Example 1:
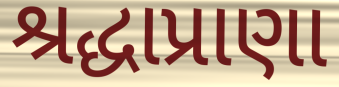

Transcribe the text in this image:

શ્રદ્ધાપ્રાણા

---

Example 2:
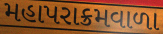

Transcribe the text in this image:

મહાપરાક્રમવાળા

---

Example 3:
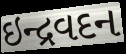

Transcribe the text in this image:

ઇન્દ્રવદન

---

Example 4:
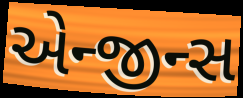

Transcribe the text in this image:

એન્જીન્સ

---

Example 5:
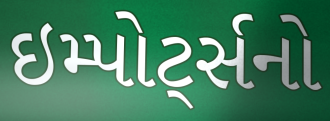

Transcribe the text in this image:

ઇમ્પોર્ટ્સનો